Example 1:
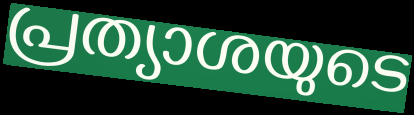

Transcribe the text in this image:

പ്രത്യാശയുടെ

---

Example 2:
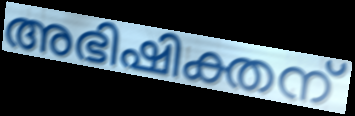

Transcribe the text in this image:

അഭിഷിക്തന്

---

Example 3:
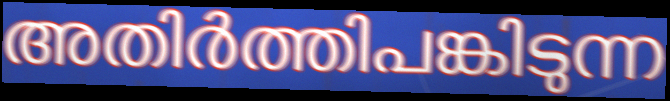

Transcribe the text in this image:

അതിർത്തിപങ്കിടുന്ന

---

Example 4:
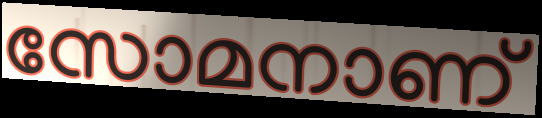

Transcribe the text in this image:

സോമനാണ്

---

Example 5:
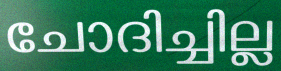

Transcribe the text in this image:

ചോദിച്ചില്ല